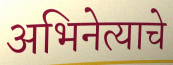
अभिनेत्याचे